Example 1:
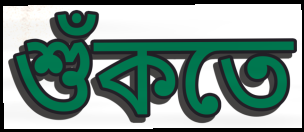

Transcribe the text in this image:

শুঁকতে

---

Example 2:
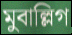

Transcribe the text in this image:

মুবাল্লিগ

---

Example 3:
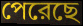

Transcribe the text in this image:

পেরেছে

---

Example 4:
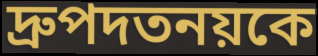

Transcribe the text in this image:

দ্রুপদতনয়কে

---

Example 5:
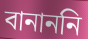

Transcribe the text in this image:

বানাননি